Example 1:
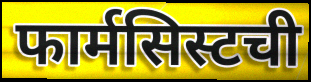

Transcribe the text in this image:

फार्मसिस्टची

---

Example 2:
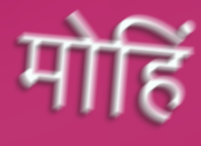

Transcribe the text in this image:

मोहिं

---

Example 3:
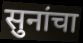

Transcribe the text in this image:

सुनांचा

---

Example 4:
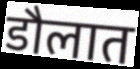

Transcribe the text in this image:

डौलात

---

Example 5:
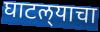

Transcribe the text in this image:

घाटल्याचा